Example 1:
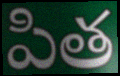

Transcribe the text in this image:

పిత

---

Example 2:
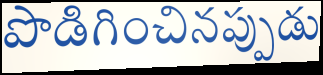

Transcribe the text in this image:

పొడిగించినప్పుడు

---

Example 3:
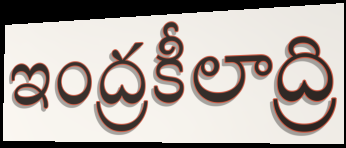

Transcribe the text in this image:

ఇంద్రకీలాద్రి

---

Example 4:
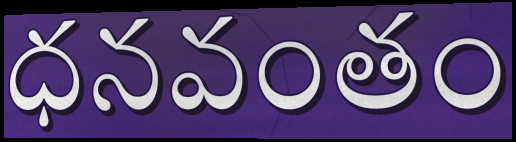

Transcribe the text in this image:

ధనవంతం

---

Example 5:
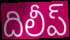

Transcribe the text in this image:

దిలీప్